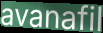
avanafil